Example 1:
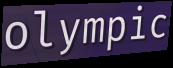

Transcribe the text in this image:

olympic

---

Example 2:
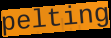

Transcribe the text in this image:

pelting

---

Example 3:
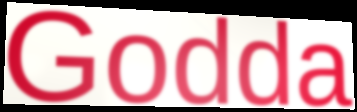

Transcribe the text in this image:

Godda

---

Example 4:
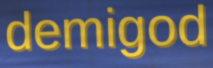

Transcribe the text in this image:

demigod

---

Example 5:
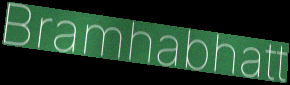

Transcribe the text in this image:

Bramhabhatt